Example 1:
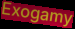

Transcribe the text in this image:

Exogamy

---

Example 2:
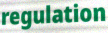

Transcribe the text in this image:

regulation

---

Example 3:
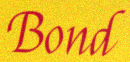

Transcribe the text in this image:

Bond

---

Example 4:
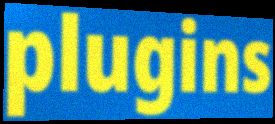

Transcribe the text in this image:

plugins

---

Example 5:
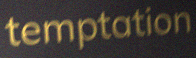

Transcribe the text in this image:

temptation